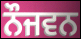
ਨੌਜਵਨ